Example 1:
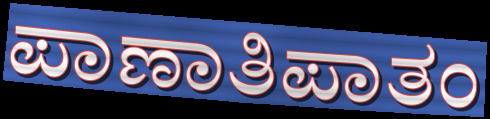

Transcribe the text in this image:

ಪಾಣಾತಿಪಾತಂ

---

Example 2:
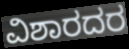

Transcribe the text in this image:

ವಿಶಾರದರ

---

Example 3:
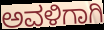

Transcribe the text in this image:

ಅವಳಿಗಾಗಿ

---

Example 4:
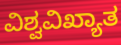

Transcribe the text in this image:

ವಿಶ್ವವಿಖ್ಯಾತ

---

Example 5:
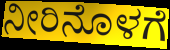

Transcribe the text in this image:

ನೀರಿನೊಳಗೆ